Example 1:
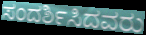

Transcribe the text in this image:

ಸಂದರ್ಶಿಸಿದವರು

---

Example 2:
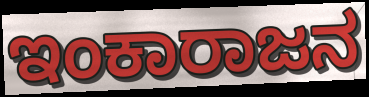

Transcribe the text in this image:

ಇಂಕಾರಾಜನ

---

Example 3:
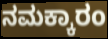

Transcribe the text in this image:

ನಮಕ್ಕಾರಂ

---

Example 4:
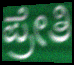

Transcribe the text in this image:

ಪ್ರೇತಿ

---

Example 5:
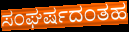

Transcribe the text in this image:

ಸಂಘರ್ಷದಂತಹ